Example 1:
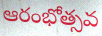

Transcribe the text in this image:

ఆరంభోత్సవ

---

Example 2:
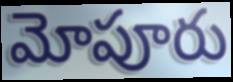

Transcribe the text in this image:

మోపూరు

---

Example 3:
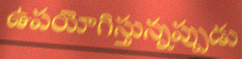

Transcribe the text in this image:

ఉపయోగిస్తున్నప్పుడు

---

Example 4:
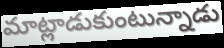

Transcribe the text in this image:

మాట్లాడుకుంటున్నాడు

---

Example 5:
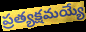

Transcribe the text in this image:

ప్రత్యక్షమయ్యే